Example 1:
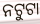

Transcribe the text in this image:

ନଟୁଟା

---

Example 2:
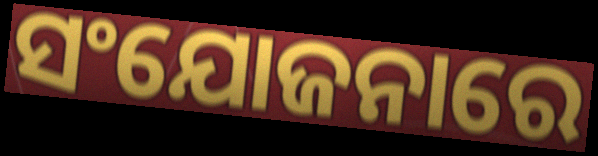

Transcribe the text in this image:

ସଂଯୋଜନାରେ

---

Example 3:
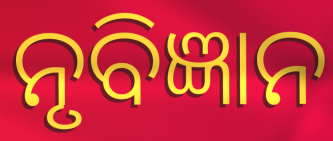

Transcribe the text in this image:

ନୃବିଜ୍ଞାନ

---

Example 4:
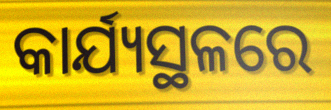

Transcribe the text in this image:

କାର୍ଯ୍ୟସ୍ଥଳରେ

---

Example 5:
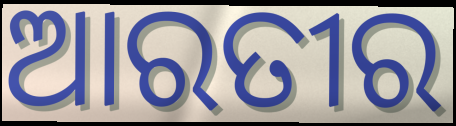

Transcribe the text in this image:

ଆରତୀର